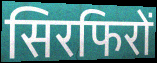
सिरफिरों